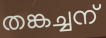
തങ്കച്ചന്